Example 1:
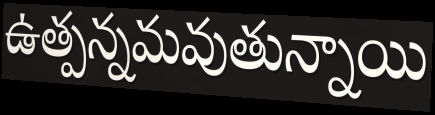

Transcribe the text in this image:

ఉత్పన్నమవుతున్నాయి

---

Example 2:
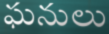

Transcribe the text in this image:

ఘనులు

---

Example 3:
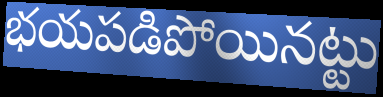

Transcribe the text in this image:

భయపడిపోయినట్టు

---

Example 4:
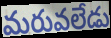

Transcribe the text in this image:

మరువలేడు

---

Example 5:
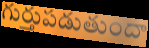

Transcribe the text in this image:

గుర్తుపడుతుందా